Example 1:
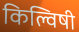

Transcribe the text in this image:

किल्विषी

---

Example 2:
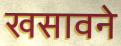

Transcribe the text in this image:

खसावने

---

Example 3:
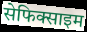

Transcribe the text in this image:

सेफिक्साइम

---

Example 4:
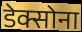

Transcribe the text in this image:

डेक्सोना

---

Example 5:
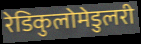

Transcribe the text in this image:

रेडिकुलोमेडुलरी